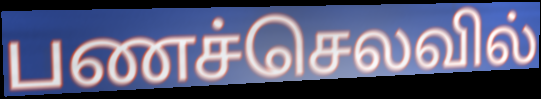
பணச்செலவில்